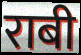
राबी